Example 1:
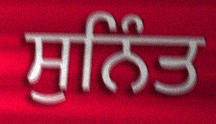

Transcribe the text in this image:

ਸੁਨਿੰਤ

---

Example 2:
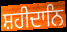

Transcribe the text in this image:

ਸ਼ਹੀਦਾਨਿ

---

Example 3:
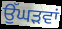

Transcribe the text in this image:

ਉੱਘੜਵਾਂ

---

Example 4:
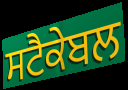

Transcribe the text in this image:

ਸਟੈਕੇਬਲ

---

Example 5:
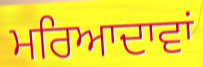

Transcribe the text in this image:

ਮਰਿਆਦਾਵਾਂ